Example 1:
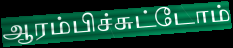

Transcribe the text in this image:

ஆரம்பிச்சுட்டோம்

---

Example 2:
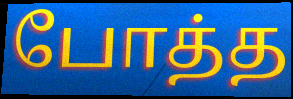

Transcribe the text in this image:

போத்த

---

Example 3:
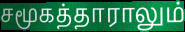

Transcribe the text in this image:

சமூகத்தாராலும்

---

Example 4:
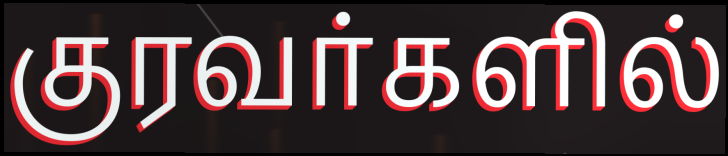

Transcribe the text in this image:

குரவர்களில்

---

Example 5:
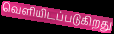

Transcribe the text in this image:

வெளியிடப்படுகிறது